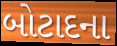
બોટાદના